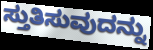
ಸ್ತುತಿಸುವುದನ್ನು